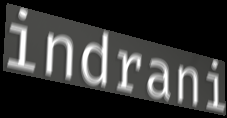
indrani